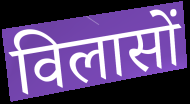
विलासों